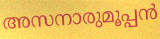
അസനാരുമൂപ്പൻ